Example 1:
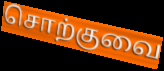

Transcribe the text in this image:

சொற்குவை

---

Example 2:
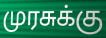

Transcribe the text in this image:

முரசுக்கு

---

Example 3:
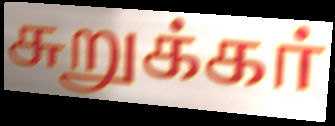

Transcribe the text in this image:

சுறுக்கர்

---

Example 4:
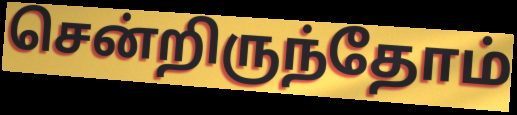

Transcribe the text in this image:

சென்றிருந்தோம்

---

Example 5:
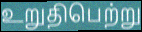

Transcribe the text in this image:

உறுதிபெற்று